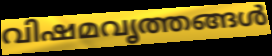
വിഷമവൃത്തങ്ങൾ